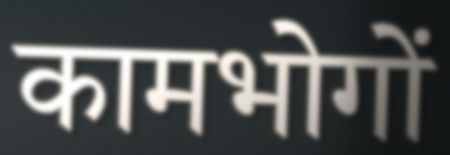
कामभोगों